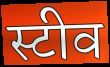
स्टीव